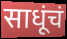
साधूंचं